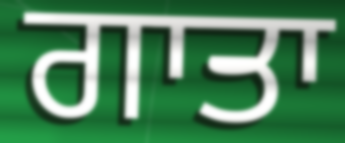
ਗਾਤਾ